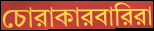
চোরাকারবারিরা